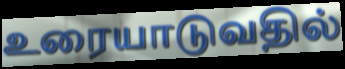
உரையாடுவதில்